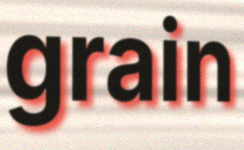
grain